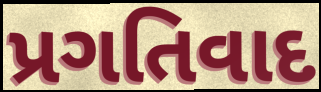
પ્રગતિવાદ